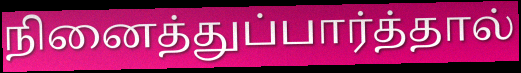
நினைத்துப்பார்த்தால்